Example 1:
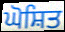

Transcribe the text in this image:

ਘੋਸ਼ਿਤ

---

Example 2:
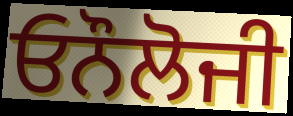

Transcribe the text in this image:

ਓਨੌਲੋਜੀ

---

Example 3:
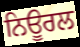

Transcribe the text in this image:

ਨਿਊਰਲ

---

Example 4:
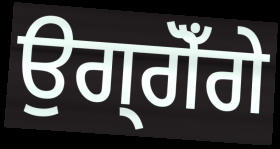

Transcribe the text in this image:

ਉਗ੍ਗੋਁਗੇ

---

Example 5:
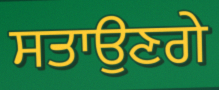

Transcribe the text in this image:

ਸਤਾਉਣਗੇ